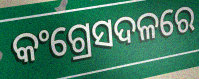
କଂଗ୍ରେସଦଳରେ